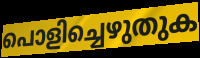
പൊളിച്ചെഴുതുക